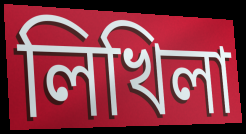
লিখিলা